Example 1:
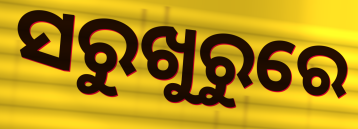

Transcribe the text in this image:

ସରୁଖୁରୁରେ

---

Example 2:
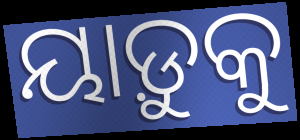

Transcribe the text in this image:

ୟାଡ଼ୁକୁ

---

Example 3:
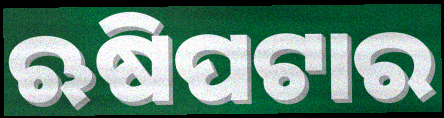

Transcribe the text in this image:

ଋଷିପଟାର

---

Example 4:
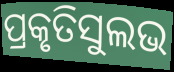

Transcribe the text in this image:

ପ୍ରକୃତିସୁଲଭ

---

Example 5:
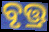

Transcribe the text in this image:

ବୃତ୍ତ୍ର